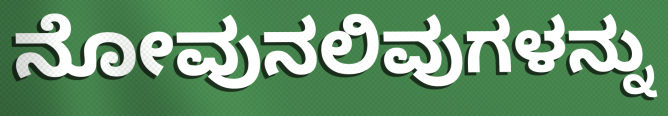
ನೋವುನಲಿವುಗಳನ್ನು